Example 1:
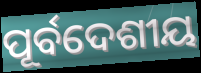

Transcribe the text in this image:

ପୂର୍ବଦେଶୀୟ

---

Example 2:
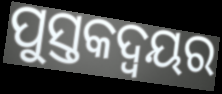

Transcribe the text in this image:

ପୁସ୍ତକଦ୍ୱୟର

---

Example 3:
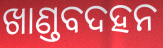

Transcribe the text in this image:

ଖାଣ୍ଡବଦହନ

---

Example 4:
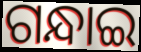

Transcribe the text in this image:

ଗନ୍ଧାଇ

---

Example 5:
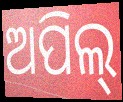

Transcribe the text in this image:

ଅପିଲ୍